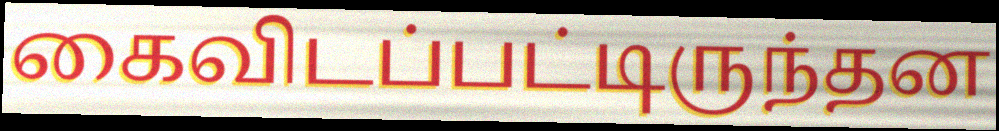
கைவிடப்பட்டிருந்தன